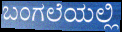
ಬಂಗಲೆಯಲ್ಲಿ